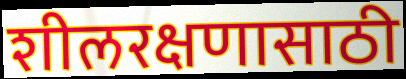
शीलरक्षणासाठी